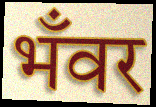
भँवर